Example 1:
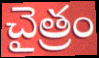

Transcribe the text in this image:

చైత్రం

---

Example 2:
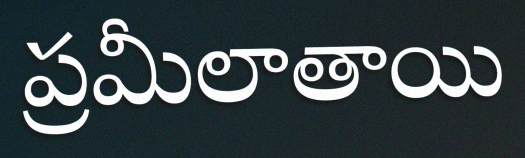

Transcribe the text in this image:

ప్రమీలాతాయి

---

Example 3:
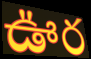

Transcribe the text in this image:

ఊర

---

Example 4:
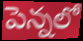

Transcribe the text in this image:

పెన్నలో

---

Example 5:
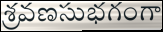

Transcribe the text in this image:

శ్రవణసుభగంగా